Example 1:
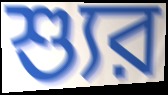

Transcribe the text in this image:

শ্যুর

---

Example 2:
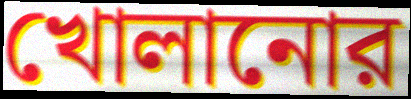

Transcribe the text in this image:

খোলানোর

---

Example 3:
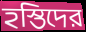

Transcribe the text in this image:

হস্তিদের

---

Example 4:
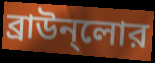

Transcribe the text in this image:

ব্রাউন্লোর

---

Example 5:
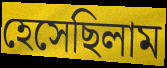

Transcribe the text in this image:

হেসেছিলাম